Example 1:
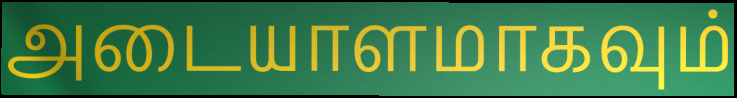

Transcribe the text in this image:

அடையாளமாகவும்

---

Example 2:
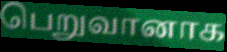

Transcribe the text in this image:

பெறுவானாக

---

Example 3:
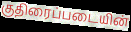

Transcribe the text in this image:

குதிரைப்படையின்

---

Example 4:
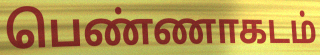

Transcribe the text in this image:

பெண்ணாகடம்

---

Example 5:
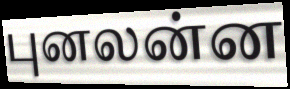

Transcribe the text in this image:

புனலன்ன